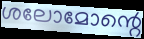
ശലോമോന്റെ